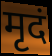
मृदं